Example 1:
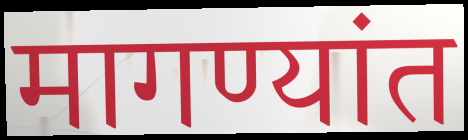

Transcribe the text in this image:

मागण्यांत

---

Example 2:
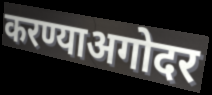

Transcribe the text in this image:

करण्याअगोदर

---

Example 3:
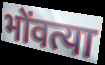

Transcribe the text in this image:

भोंवत्या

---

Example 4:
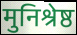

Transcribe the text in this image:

मुनिश्रेष्ठ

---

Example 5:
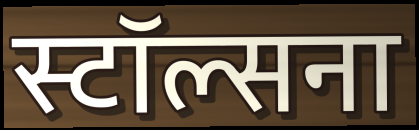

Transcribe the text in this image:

स्टॉल्सना